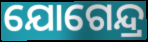
ଯୋଗେନ୍ଦ୍ର